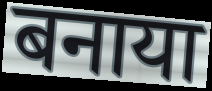
बनाया